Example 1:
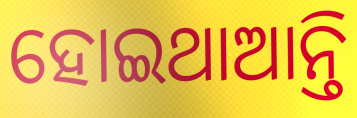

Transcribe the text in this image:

ହୋଇଥାଆନ୍ତି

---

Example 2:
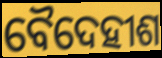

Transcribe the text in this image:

ବୈଦେହୀଶ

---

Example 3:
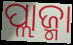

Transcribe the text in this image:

ପ୍ଲାଜ୍ମା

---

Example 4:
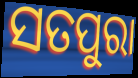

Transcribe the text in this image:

ସତପୁରା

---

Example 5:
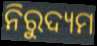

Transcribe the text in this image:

ନିରୁଦ୍ୟମ